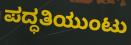
ಪದ್ಧತಿಯುಂಟು